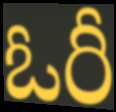
ఓరీ